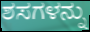
ಶಸಗಳನ್ನು